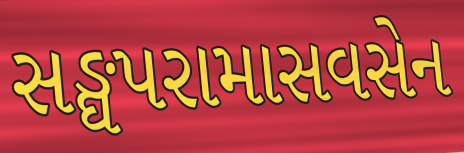
સઙ્ઘપરામાસવસેન